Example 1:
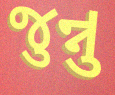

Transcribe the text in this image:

જુન્નુ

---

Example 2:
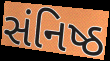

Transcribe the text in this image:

સંનિષ્ઠ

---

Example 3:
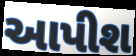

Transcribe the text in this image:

આપીશ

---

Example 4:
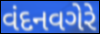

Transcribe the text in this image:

વંદનવગેરે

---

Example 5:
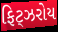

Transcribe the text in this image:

ફિટ્ઝરોય